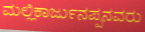
ಮಲ್ಲಿಕಾರ್ಜುನಪ್ಪನವರು